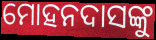
ମୋହନଦାସଙ୍କୁ